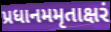
પ્રધાનમમૃતાક્ષરં